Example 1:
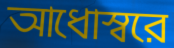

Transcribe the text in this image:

আধোস্বরে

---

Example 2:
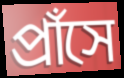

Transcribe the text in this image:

প্রাঁসে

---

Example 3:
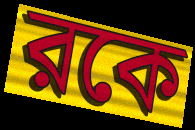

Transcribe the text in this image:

রকে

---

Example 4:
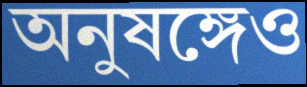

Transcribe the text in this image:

অনুষঙ্গেও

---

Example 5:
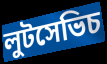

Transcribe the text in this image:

লুটসেভিচ